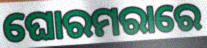
ଘୋରମରାରେ